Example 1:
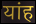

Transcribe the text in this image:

यांह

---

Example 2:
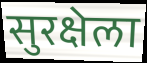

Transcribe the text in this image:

सुरक्षेला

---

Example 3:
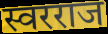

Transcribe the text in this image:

स्वरराज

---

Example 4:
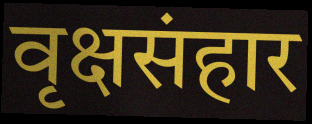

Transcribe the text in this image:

वृक्षसंहार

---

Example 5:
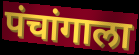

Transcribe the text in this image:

पंचांगाला